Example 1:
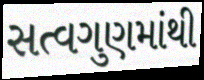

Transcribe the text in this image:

સત્વગુણમાંથી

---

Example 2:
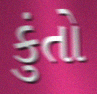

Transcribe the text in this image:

કુંતો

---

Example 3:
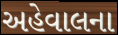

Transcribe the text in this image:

અહેવાલના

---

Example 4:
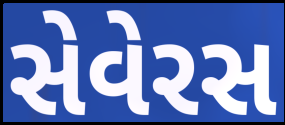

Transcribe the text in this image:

સેવેરસ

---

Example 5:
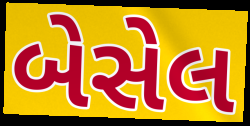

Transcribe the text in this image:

બેસેલ